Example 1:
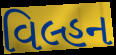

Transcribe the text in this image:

વિલ્હન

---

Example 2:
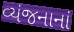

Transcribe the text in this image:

વ્યંજનાનાં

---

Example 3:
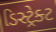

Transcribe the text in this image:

ડિસ્ટ્રેક્ટ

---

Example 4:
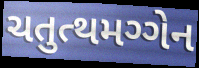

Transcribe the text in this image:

ચતુત્થમગ્ગેન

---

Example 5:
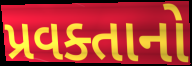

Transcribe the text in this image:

પ્રવક્તાનો